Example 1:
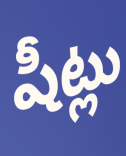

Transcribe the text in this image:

షీట్లు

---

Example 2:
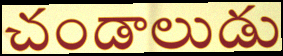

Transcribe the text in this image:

చండాలుడు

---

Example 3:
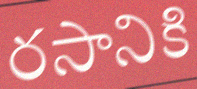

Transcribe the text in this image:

రసానికి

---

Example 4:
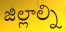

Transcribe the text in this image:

జిల్లాల్ని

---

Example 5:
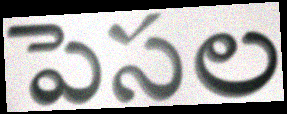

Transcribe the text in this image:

పెసల